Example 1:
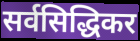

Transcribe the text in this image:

सर्वसिद्धिकर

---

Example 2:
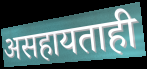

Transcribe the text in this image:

असहायताही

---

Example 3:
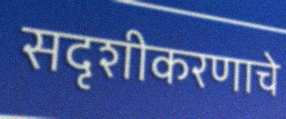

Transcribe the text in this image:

सदृशीकरणाचे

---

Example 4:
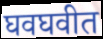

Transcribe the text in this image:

घवघवीत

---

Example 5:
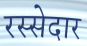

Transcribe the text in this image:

रस्सेदार